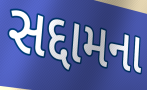
સદ્દામના